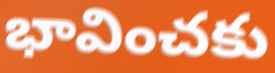
భావించకు